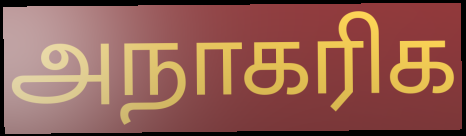
அநாகரிக